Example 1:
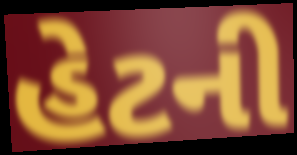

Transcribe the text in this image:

હેટની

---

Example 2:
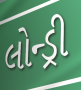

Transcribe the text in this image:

લોન્ડ્રી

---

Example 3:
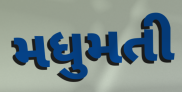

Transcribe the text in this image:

મધુમતી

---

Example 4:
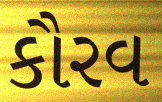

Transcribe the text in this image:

કૌરવ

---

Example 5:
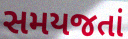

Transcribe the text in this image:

સમયજતાં